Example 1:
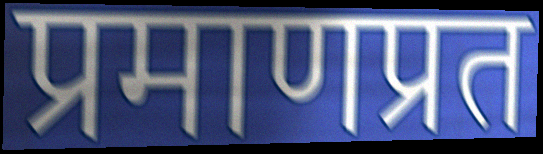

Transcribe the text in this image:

प्रमाणप्रत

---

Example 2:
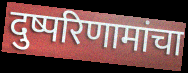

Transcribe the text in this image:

दुष्परिणामांचा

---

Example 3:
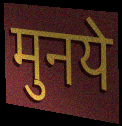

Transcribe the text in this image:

मुनये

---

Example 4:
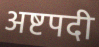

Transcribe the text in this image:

अष्टपदी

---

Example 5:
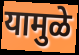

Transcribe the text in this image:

यामुळे